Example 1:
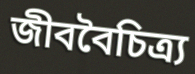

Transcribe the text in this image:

জীববৈচিত্র্য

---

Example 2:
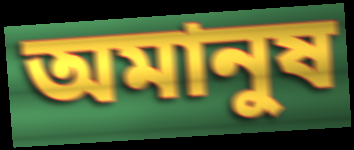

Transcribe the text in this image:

অমানুষ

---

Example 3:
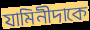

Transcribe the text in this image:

যামিনীদাকে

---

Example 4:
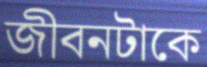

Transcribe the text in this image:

জীবনটাকে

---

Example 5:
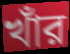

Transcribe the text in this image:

খাঁর